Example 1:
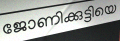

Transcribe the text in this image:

ജോണിക്കുട്ടിയെ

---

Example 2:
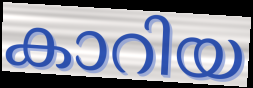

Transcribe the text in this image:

കാറിയ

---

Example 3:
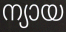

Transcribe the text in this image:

ന്യായ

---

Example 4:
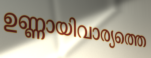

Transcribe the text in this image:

ഉണ്ണായിവാര്യത്തെ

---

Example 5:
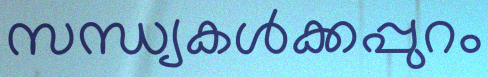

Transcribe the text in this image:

സന്ധ്യകൾക്കപ്പുറം